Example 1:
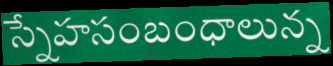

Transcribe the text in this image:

స్నేహసంబంధాలున్న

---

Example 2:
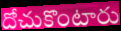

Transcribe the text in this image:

దోచుకొంటారు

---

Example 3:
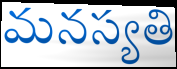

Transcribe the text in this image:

మనస్యతి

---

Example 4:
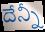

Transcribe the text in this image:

దేన్నీ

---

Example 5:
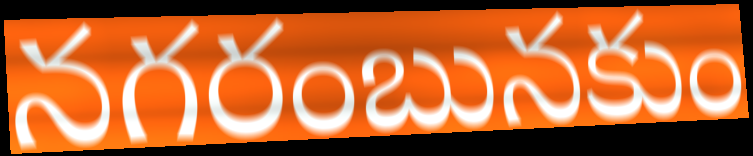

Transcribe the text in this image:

నగరంబునకుం